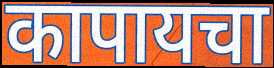
कापायचा